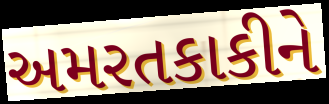
અમરતકાકીને